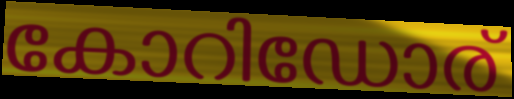
കോറിഡോര്